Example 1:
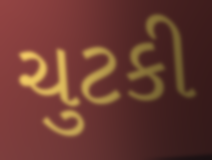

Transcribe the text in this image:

ચુટકી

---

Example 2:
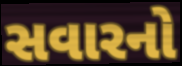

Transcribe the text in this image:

સવારનો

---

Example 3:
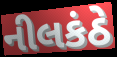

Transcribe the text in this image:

નીલકંઠે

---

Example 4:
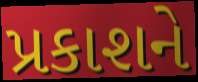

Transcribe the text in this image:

પ્રકાશને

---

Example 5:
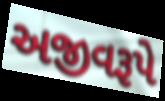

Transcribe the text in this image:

અજીવરૂપે